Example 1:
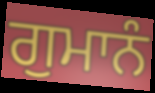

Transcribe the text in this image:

ਗੁਮਾਨੰ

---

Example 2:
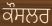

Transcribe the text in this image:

ਕੌਸਲਰ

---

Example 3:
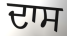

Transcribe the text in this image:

ਦਾਸ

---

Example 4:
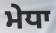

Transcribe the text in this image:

ਮੇਧਾ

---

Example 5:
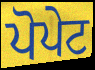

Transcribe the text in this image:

ਪੋਪੇਟ